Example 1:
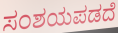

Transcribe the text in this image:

ಸಂಶಯಪಡದೆ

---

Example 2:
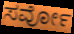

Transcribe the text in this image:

ಸರ್ವೋ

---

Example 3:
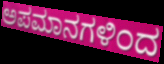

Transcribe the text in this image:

ಅಪಮಾನಗಳಿಂದ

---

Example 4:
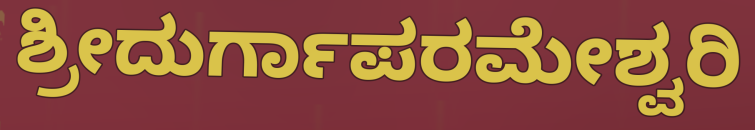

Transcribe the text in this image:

ಶ್ರೀದುರ್ಗಾಪರಮೇಶ್ವರಿ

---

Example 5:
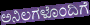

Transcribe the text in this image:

ಅನಿಲಗಳೊಂದಿಗೆ